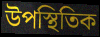
উপস্থিতিক